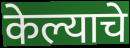
केल्याचे